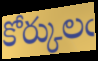
కోర్కులఁ